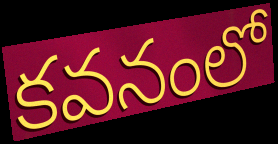
కవనంలో